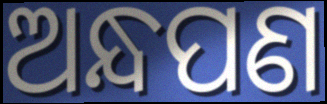
ଅନ୍ଧପଣ